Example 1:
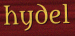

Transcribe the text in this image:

hydel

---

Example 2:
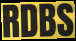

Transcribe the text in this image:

RDBS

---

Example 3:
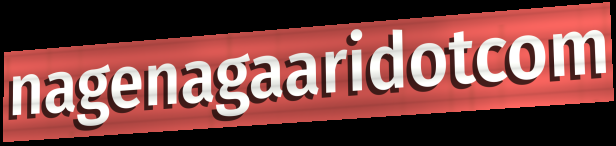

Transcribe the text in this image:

nagenagaaridotcom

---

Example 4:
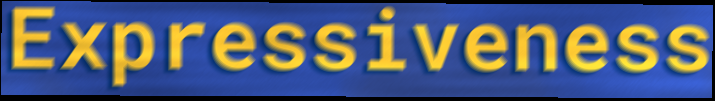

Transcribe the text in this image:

Expressiveness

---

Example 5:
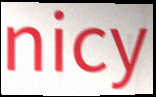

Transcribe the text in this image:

nicy